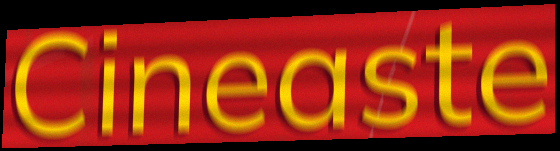
Cineaste